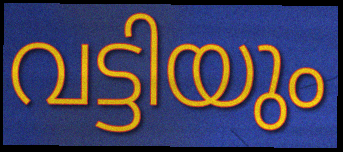
വട്ടിയും